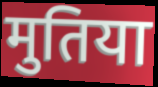
मुतिया